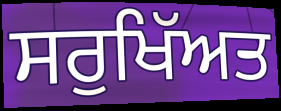
ਸਰੁਖਿੱਅਤ